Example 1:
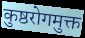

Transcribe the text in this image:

कुष्ठरोगमुक्त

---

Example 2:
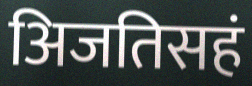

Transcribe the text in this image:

अिजतिसहं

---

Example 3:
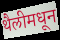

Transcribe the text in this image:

थैलीमधून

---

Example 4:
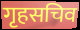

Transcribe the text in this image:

गृहसचिव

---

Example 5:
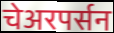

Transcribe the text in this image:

चेअरपर्सन